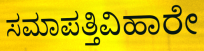
ಸಮಾಪತ್ತಿವಿಹಾರೇ